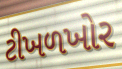
ટીખળખોર